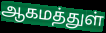
ஆகமத்துள்